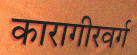
कारागीरवर्ग